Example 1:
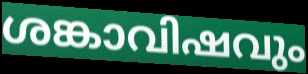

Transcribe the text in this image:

ശങ്കാവിഷവും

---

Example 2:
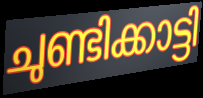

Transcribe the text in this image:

ചുണ്ടിക്കാട്ടി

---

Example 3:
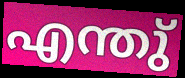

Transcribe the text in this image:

എന്തു്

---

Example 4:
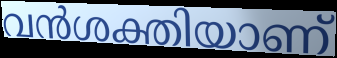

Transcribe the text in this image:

വൻശക്തിയാണ്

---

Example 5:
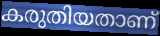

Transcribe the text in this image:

കരുതിയതാണ്